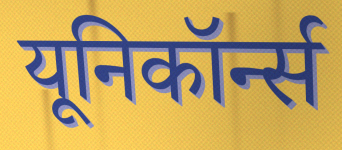
यूनिकॉर्न्स